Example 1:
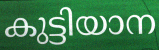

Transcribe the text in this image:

കുട്ടിയാന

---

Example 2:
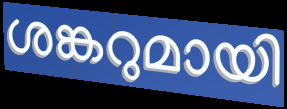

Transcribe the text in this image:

ശങ്കറുമായി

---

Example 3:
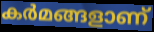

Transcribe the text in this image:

കർമങ്ങളാണ്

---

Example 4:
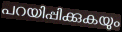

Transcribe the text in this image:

പറയിപ്പിക്കുകയും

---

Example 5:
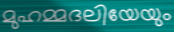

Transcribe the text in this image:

മുഹമ്മദലിയേയും